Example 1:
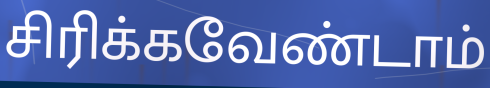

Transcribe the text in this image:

சிரிக்கவேண்டாம்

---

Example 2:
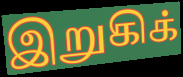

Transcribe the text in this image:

இறுகிக்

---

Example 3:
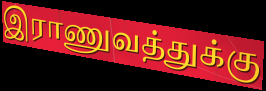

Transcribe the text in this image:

இராணுவத்துக்கு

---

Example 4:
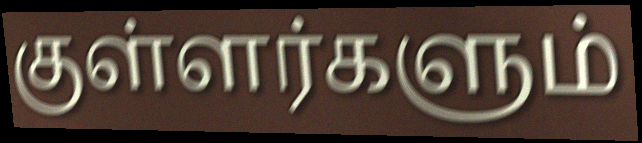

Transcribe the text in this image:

குள்ளர்களும்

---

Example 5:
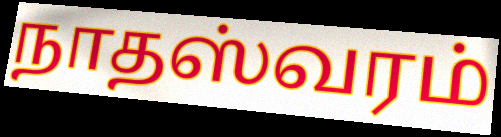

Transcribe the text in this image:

நாதஸ்வரம்